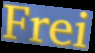
Frei